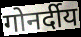
गोनर्दीय